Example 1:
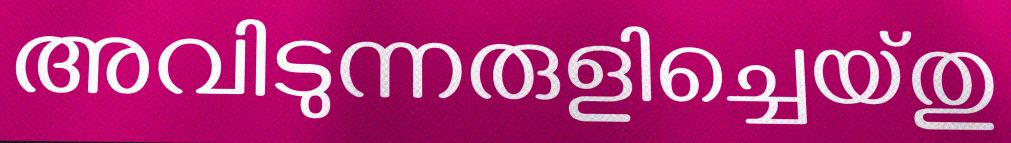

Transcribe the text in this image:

അവിടുന്നരുളിച്ചെയ്തു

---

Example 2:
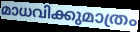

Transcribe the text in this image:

മാധവിക്കുമാത്രം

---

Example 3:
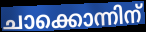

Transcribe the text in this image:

ചാക്കൊന്നിന്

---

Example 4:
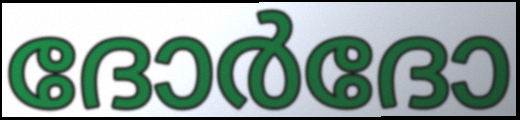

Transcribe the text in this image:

ദോർദോ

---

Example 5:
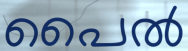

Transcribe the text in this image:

പൈൽ